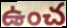
ఉంచ